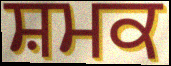
ਸ਼ਮਕ